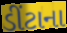
ડીંટાના